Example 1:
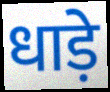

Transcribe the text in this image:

धाड़े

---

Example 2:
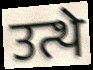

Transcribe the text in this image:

उत्थे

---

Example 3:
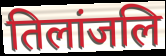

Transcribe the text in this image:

तिलांजलि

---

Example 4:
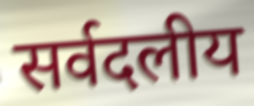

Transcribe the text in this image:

सर्वदलीय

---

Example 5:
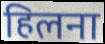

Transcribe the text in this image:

हिलना